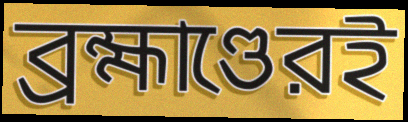
ব্রহ্মাণ্ডেরই